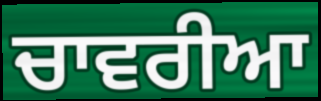
ਚਾਵਰੀਆ